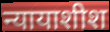
न्यायाशीश